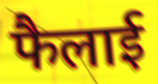
फैलाई